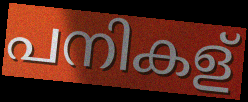
പനികള്